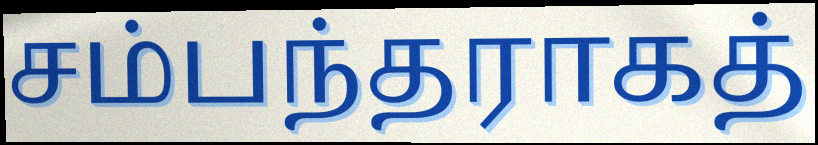
சம்பந்தராகத்